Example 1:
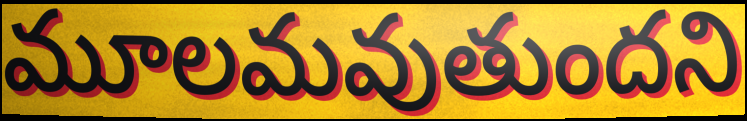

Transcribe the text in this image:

మూలమవుతుందని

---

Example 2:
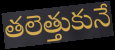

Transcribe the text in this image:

తలెత్తుకునే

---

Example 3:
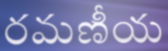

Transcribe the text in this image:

రమణీయ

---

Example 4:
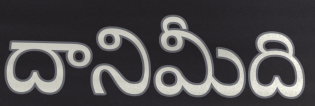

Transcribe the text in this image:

దానిమీది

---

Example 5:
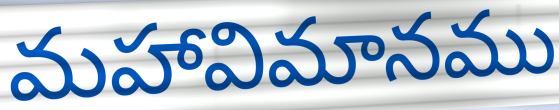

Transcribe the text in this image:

మహావిమానము